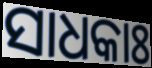
ସାଧକାଃ